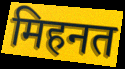
मिहनत